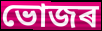
ভোজৰ